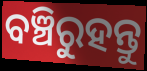
ବଞ୍ଚିରୁହନ୍ତୁ